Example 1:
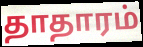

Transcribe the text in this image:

தாதாரம்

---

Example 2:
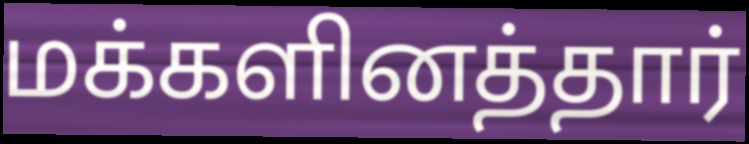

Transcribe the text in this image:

மக்களினத்தார்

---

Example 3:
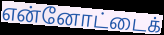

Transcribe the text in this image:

என்னோட்டைக்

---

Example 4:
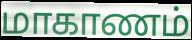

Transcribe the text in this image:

மாகாணம்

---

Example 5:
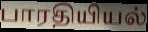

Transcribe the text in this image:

பாரதியியல்